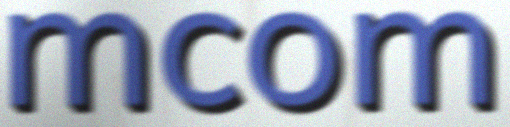
mcom